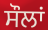
ਸੌਲਾਂ